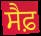
ਸੈਫ਼